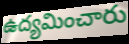
ఉద్యమించారు